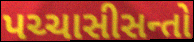
પચ્ચાસીસન્તો